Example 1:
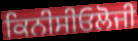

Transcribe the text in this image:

ਕਿਨੀਸੀਓਲੋਜੀ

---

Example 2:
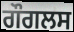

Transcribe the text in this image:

ਗੌਗਲਸ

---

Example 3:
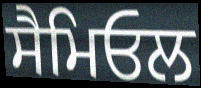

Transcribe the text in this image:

ਸੈਮਿਓਲ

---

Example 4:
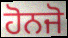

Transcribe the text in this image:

ਹੋਨਜੋ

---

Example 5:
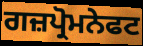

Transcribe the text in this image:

ਗਜ਼ਪ੍ਰੋਮਨੇਫਟ